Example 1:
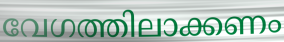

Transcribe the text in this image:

വേഗത്തിലാക്കണം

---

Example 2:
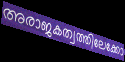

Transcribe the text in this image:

അരാജകത്വത്തിലേക്കോ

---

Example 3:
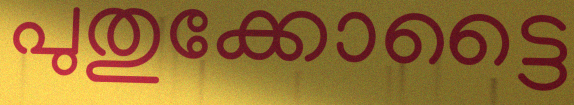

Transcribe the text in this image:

പുതുക്കോട്ടൈ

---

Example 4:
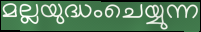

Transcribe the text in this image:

മല്ലയുദ്ധംചെയ്യുന്ന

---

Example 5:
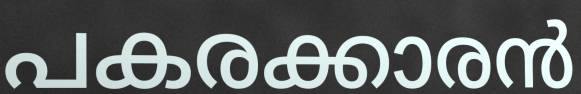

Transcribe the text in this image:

പകരക്കാരൻ